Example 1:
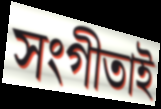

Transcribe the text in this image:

সংগীতাই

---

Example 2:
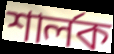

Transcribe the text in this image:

শার্লক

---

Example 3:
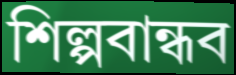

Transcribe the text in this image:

শিল্পবান্ধব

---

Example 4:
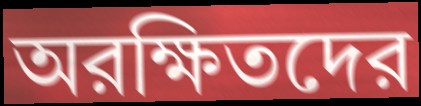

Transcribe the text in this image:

অরক্ষিতদের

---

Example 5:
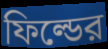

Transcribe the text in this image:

ফিল্ডের